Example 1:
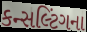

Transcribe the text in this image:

કન્સલ્ટિંગના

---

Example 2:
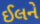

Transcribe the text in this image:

ઈલને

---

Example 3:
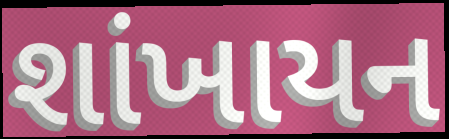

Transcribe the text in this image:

શાંખાયન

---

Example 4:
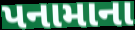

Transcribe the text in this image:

પનામાના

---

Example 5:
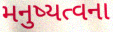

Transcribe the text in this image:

મનુષ્યત્વના